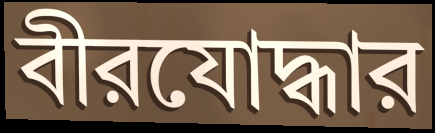
বীরযোদ্ধার